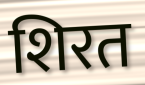
शिरत